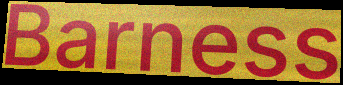
Barness